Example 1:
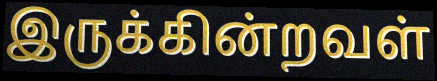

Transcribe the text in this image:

இருக்கின்றவள்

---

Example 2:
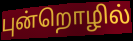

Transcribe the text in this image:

புன்றொழில்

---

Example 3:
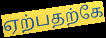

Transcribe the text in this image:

ஏற்பதற்கே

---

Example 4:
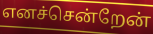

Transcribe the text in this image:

எனச்சென்றேன்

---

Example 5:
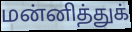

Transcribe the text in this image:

மன்னித்துக்